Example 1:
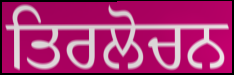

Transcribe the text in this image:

ਤਿਰਲੋਚਨ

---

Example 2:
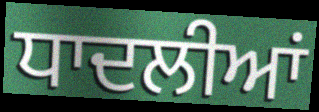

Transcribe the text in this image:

ਧਾਦਲੀਆਂ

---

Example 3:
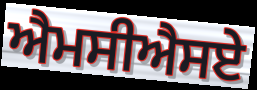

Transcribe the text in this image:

ਐਮਸੀਐਸਏ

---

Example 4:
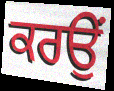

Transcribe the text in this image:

ਕਰਉਂ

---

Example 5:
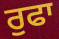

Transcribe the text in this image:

ਰੁਫਾ